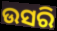
ଉସରି